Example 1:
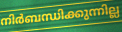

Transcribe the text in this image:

നിർബന്ധിക്കുന്നില്ല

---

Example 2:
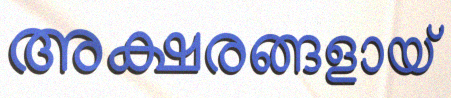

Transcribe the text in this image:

അക്ഷരങ്ങളായ്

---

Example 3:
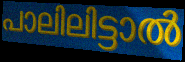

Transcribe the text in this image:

പാലിലിട്ടാൽ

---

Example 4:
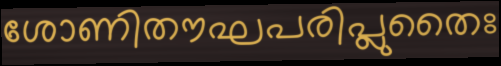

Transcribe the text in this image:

ശോണിതൗഘപരിപ്ലുതൈഃ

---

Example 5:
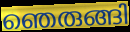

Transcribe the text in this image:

ഞെരുങ്ങി